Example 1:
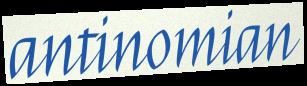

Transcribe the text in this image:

antinomian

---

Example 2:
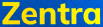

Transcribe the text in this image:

Zentra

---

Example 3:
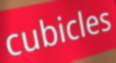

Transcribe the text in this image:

cubicles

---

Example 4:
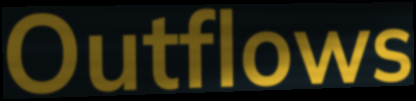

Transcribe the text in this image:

Outflows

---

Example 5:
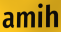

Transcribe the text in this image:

amih